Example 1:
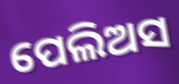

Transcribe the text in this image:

ପେଲିଅସ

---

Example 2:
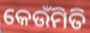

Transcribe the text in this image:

କେଉଁମିତି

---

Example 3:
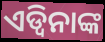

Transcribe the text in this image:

ଏଡ୍ୱିନାଙ୍କ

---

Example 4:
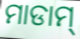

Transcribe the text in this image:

ମାଡାମ୍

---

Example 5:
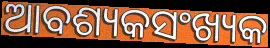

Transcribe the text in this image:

ଆବଶ୍ୟକସଂଖ୍ୟକ